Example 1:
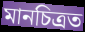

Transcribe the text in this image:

মানচিত্ৰত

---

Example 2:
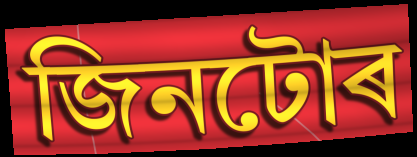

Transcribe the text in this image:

জিনটোৰ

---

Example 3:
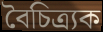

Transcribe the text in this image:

বৈচিত্ৰ্যক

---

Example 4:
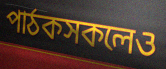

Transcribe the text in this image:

পাঠকসকলেও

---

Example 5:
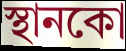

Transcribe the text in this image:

স্থানকো